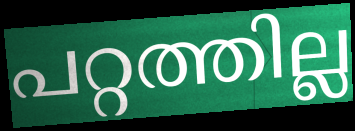
പറ്റത്തില്ല